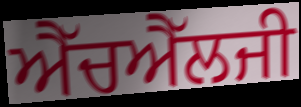
ਐੱਚਐੱਲਜੀ